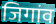
जिगांव